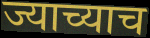
ज्याच्याच